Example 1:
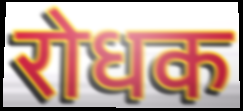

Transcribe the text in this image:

रोधक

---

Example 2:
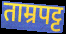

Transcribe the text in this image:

ताम्रपट्ट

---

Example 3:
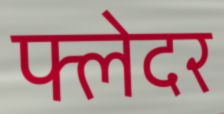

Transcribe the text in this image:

फ्लेदर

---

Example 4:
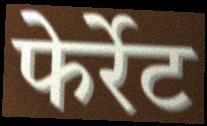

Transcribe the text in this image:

फेर्रेट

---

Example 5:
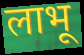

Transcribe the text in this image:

लाभू